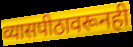
व्यासपीठावरूनही